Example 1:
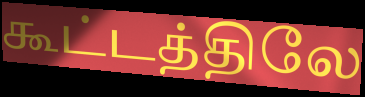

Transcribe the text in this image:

கூட்டத்திலே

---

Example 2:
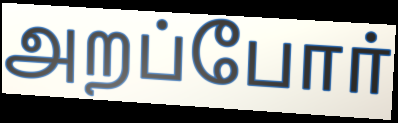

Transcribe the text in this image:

அறப்போர்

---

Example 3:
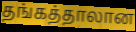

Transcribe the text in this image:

தங்கத்தாலான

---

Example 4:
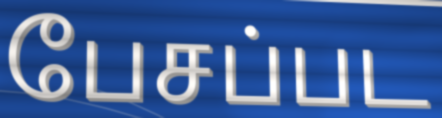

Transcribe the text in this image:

பேசப்பட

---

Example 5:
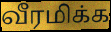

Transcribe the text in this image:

வீரமிக்க